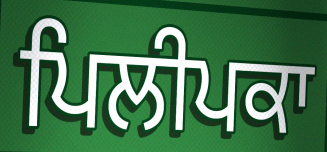
ਪਿਲੀਪਕਾ